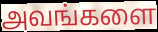
அவங்களை